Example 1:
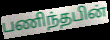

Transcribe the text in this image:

பணிந்தபின்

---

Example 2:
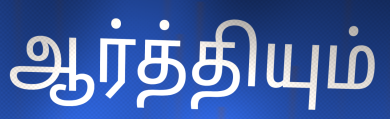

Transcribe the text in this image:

ஆர்த்தியும்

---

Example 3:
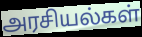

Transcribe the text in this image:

அரசியல்கள்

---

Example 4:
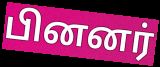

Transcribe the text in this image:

பினனர்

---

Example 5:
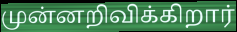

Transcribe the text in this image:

முன்னறிவிக்கிறார்